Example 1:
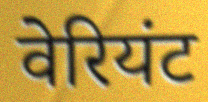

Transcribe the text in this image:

वेरियंट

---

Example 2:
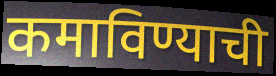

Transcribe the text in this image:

कमाविण्याची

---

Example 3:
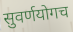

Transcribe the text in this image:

सुवर्णयोगच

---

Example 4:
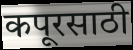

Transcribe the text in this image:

कपूरसाठी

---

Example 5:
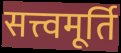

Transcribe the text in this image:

सत्त्वमूर्ति